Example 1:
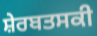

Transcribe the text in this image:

ਸ਼ੇਰਬਤਸਕੀ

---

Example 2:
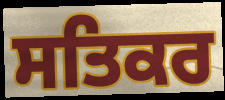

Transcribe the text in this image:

ਸਤਿਕਰ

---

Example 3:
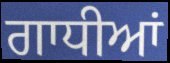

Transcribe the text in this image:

ਗਾਧੀਆਂ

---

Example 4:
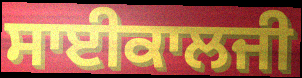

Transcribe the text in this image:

ਸਾਈਕਾਲਜੀ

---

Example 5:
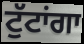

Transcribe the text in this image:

ਟੁੱਟਾਂਗਾ